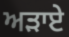
ਅੜਾਏ